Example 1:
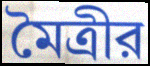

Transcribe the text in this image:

মৈত্রীর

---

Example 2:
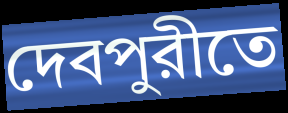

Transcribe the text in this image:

দেবপুরীতে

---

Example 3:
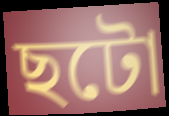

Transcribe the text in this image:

ছটো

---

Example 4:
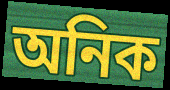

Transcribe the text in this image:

অনিক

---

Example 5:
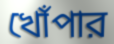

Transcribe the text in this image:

খোঁপার